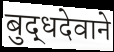
बुद्धदेवाने